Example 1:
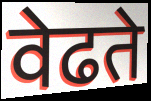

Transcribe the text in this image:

वेढते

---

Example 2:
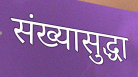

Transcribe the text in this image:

संख्यासुद्धा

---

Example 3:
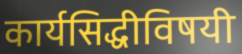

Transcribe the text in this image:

कार्यसिद्धीविषयी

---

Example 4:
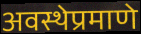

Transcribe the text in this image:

अवस्थेप्रमाणे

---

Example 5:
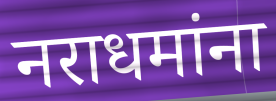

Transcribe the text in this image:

नराधमांना